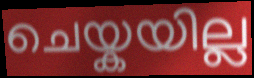
ചെയ്കയില്ല